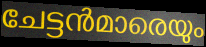
ചേട്ടൻമാരെയും